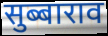
सुब्बाराव